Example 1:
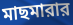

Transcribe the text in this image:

মাছমারার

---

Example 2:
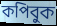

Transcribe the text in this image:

কপিবুক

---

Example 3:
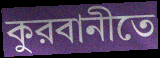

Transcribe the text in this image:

কুরবানীতে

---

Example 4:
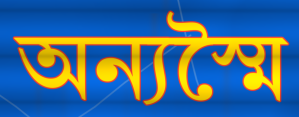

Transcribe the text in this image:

অন্যস্মৈ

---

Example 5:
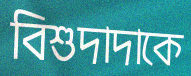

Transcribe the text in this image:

বিশুদাদাকে